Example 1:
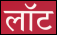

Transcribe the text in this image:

लॉट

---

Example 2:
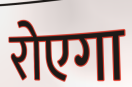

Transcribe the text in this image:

रोएगा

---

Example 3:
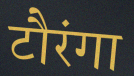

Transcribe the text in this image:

टौरंगा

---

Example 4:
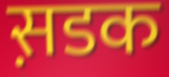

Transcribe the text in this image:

स़डक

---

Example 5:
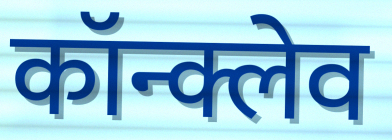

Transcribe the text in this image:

कॉन्क्लेव